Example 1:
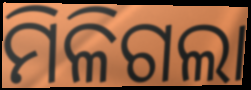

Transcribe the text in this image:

ମିଳିଗଲା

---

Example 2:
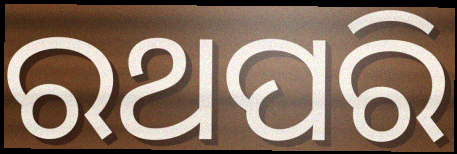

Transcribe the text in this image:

ରଥପରି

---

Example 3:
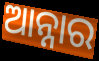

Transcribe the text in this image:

ଆନ୍ନାର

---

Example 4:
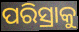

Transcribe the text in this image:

ପରିସ୍ରାକୁ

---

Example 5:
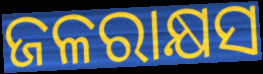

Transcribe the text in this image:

ଜଳରାକ୍ଷସ